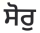
ਸੋਰੁ